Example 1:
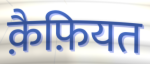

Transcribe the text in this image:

क़ैफ़ियत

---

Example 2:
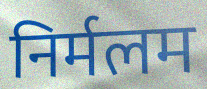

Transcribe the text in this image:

निर्मलम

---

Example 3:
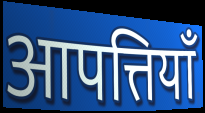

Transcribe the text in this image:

आपत्तियॉं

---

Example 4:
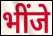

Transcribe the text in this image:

भींजे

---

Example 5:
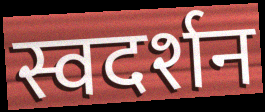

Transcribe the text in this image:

स्वदर्शन